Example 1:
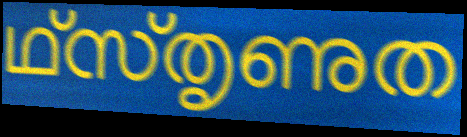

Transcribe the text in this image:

ഥ്സ്തൃണുത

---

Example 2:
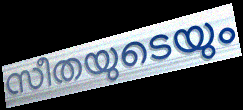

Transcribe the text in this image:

സീതയുടെയും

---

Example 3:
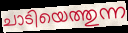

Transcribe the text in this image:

ചാടിയെത്തുന്ന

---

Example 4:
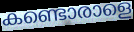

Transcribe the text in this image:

കണ്ടൊരാളെ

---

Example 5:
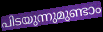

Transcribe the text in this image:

പിടയുന്നുമുണ്ടാം